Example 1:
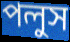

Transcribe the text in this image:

পলুস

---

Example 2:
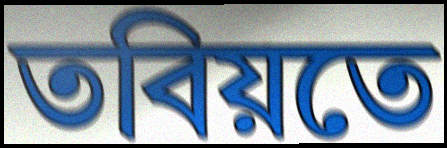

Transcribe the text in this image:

তবিয়তে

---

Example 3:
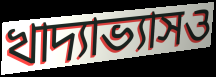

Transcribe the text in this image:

খাদ্যাভ্যাসও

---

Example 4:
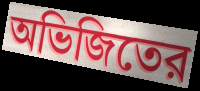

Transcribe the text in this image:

অভিজিতের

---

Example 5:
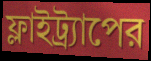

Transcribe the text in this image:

ফ্লাইট্র্যাপের